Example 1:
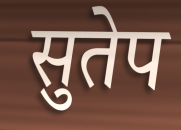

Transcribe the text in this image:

सुतेप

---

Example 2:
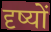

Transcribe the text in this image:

दृष्यों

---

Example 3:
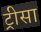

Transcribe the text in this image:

ट्रीसा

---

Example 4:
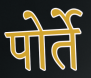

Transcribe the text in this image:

पोर्ते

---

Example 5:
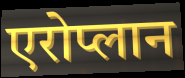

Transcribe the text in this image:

एरोप्लान